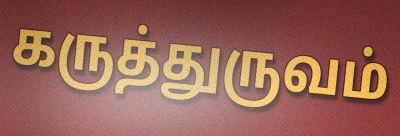
கருத்துருவம்